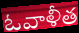
ఓవాళీత